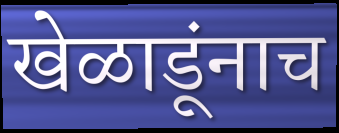
खेळाडूंनाच